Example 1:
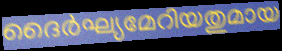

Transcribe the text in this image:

ദൈർഘ്യമേറിയതുമായ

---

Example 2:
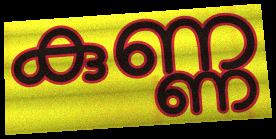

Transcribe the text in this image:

കുണ്ണ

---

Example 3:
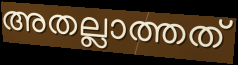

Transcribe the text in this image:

അതല്ലാത്തത്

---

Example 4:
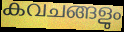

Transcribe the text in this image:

കവചങ്ങളും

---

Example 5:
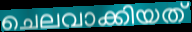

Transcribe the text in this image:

ചെലവാക്കിയത്